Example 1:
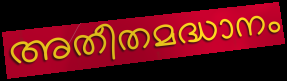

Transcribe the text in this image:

അതീതമദ്ധാനം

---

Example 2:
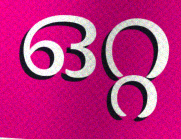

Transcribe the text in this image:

ഒറ്റ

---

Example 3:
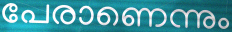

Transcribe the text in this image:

പേരാണെന്നും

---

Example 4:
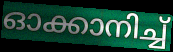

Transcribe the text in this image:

ഓക്കാനിച്ച്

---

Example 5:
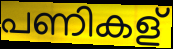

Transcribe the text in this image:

പണികള്